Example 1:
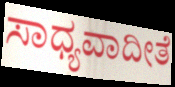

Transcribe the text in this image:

ಸಾಧ್ಯವಾದೀತೆ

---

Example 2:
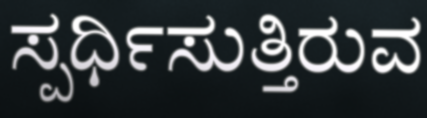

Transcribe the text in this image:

ಸ್ಪರ್ಧಿಸುತ್ತಿರುವ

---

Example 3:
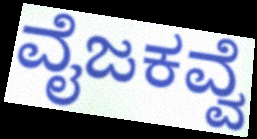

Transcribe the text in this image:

ವೈಜಕವ್ವೆ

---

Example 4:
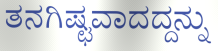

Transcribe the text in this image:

ತನಗಿಷ್ಟವಾದದ್ದನ್ನು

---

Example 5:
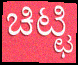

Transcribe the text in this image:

ಚಿಟ್ಟಿ